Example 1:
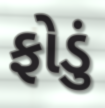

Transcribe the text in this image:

ફોડું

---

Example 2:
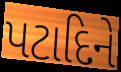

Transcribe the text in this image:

પટાદિને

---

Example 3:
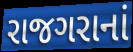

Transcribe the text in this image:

રાજગરાનાં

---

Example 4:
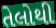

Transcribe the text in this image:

તેલોથી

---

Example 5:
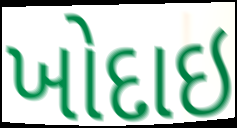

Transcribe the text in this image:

ખોદાઇ